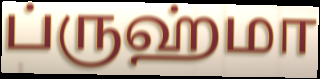
ப்ருஹ்மா